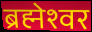
ब्रह्मेश्वर